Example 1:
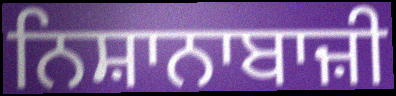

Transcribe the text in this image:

ਨਿਸ਼ਾਨਾਬਾਜ਼ੀ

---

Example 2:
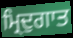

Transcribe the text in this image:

ਮ੍ਰਿਦੁਗਾਤ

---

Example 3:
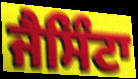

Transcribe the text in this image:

ਜੈਸਿੰਟਾ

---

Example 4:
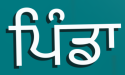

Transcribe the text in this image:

ਪਿੰਡਾ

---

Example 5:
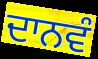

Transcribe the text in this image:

ਦਾਨਵੰ